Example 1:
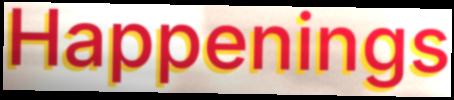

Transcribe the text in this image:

Happenings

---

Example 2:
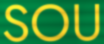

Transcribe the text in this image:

SOU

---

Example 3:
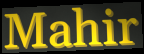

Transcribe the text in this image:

Mahir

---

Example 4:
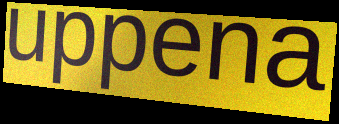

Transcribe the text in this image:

uppena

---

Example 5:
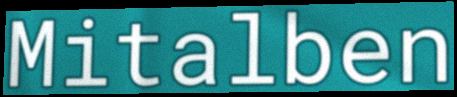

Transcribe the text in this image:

Mitalben